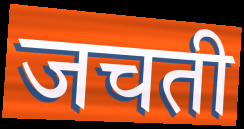
जचती